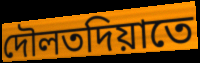
দৌলতদিয়াতে